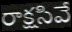
రాక్షసివే